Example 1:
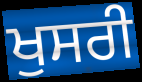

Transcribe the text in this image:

ਖੁਸਰੀ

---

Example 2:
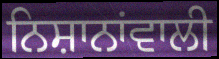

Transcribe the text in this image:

ਨਿਸ਼ਾਨਾਂਵਾਲੀ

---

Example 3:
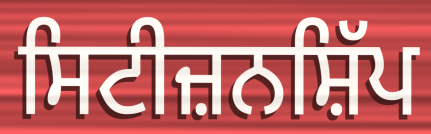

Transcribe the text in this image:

ਸਿਟੀਜ਼ਨਸ਼ਿੱਪ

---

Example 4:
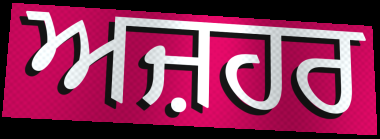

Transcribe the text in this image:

ਅਜ਼ਹਰ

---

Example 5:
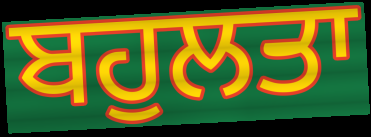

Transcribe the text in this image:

ਬਹੁਲਤਾ